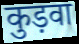
कुड़वा